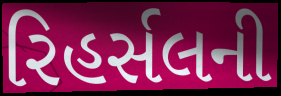
રિહર્સલની